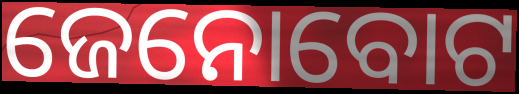
ଜେନୋବୋଟ